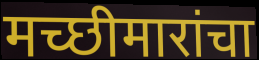
मच्छीमारांचा